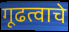
गूढत्वाचे